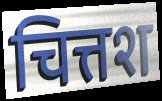
चित्तश